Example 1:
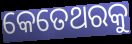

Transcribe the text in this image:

କେତେଥରକୁ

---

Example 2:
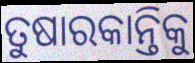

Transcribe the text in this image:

ତୁଷାରକାନ୍ତିକୁ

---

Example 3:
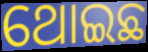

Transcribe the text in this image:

ଥୋଇଛ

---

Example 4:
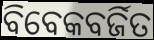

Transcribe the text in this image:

ବିବେକବର୍ଜିତ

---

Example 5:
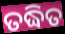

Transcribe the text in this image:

ତଦ୍ଧିତ